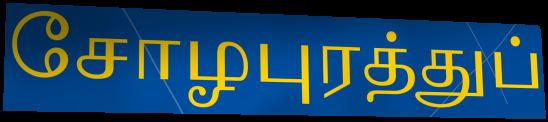
சோழபுரத்துப்